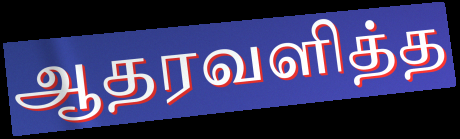
ஆதரவளித்த